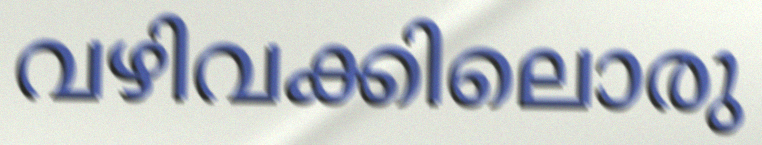
വഴിവക്കിലൊരു